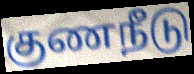
குணநீடு